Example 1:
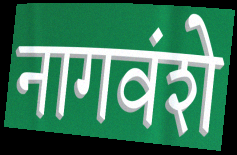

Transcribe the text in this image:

नागवंशे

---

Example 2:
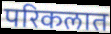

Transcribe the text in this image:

परिकलात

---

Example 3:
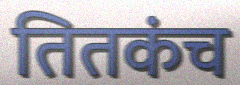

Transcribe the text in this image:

तितकंच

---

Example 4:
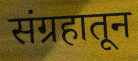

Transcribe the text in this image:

संग्रहातून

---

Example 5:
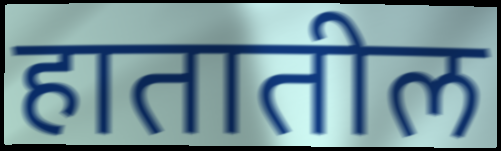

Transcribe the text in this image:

हातातील